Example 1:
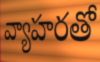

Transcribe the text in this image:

వ్యాహరతో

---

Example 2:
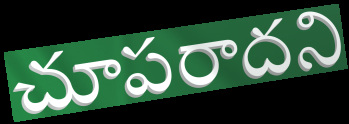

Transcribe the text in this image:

చూపరాదని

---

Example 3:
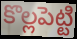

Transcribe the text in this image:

కొల్లపెట్టి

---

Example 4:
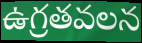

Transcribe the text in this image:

ఉగ్రతవలన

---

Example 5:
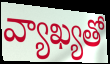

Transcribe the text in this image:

వ్యాఖ్యతో